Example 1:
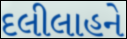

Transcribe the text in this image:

દલીલાહને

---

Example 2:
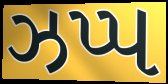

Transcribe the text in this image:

ઝપ્પ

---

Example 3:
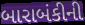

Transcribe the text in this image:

બારાબંકીની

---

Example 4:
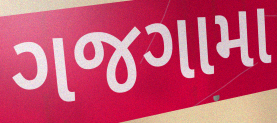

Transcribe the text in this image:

ગજગામા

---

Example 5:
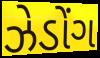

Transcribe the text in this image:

ઝેડોંગ